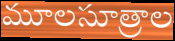
మూలసూత్రాల